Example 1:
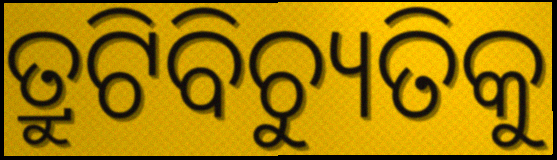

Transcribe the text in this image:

ତ୍ରୁଟିବିଚ୍ୟୁତିକୁ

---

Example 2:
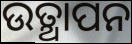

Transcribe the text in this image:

ଉତ୍ଥାପନ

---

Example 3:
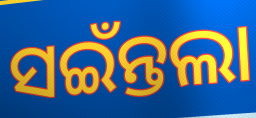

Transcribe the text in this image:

ସଇଁନ୍ତଲା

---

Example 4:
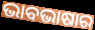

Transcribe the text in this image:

ଭାବଭାଷାର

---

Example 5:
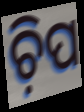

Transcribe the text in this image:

ଚ଼ିପ